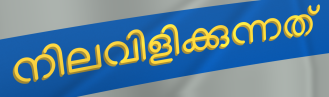
നിലവിളിക്കുന്നത്